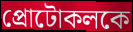
প্রোটোকলকে